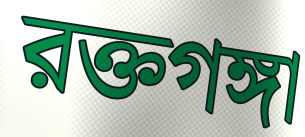
রক্তগঙ্গা